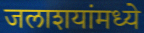
जलाशयांमध्ये